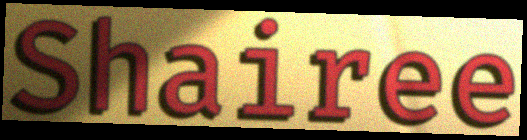
Shairee